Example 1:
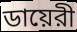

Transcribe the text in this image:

ডায়েরী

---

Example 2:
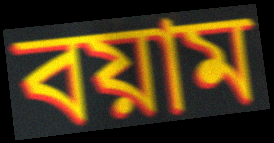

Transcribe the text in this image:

বয়াম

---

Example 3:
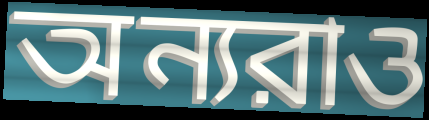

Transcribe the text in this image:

অন্যরাও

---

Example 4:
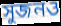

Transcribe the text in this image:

সুজনও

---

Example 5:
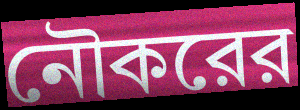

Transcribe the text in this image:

নৌকরের